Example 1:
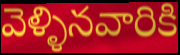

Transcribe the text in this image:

వెళ్ళినవారికి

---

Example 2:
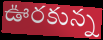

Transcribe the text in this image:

ఊరకున్న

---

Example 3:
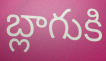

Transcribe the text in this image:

బ్లాగుకి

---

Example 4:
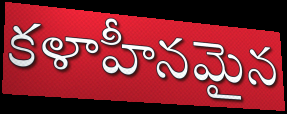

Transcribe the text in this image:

కళాహీనమైన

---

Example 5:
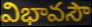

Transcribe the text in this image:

విభావసౌ